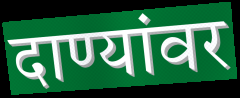
दाण्यांवर